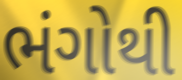
ભંગોથી